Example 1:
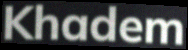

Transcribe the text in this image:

Khadem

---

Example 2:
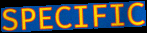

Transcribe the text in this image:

SPECIFIC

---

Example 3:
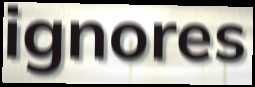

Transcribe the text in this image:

ignores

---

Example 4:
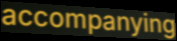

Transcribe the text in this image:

accompanying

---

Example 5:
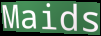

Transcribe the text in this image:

Maids